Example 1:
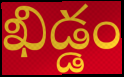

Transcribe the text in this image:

ఖిడ్డం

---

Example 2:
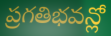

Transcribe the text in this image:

ప్రగతిభవన్లో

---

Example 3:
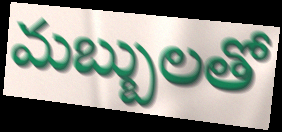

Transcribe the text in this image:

మబ్బులతో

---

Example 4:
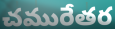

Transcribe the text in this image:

చమురేతర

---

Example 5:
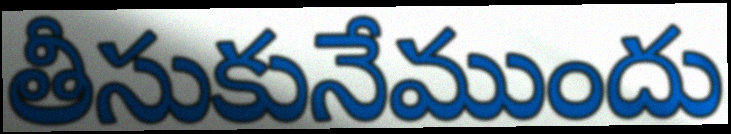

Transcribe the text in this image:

తీసుకునేముందు